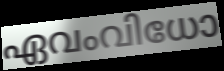
ഏവംവിധോ